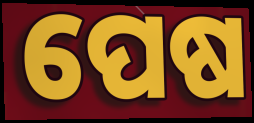
ପେଷ